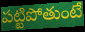
పట్టిపోతుంటే